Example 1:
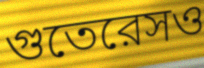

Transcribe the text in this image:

গুতেরেসও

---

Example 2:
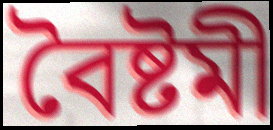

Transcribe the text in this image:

বৈষ্টমী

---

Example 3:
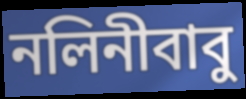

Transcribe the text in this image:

নলিনীবাবু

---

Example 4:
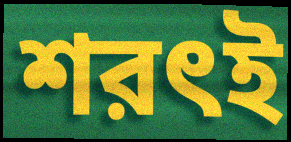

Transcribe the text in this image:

শরৎই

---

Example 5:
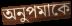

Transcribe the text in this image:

অনুপমাকে